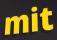
mit